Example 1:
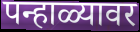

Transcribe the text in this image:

पन्हाळ्यावर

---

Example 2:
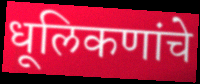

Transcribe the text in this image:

धूलिकणांचे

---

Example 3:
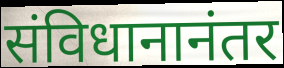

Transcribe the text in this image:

संविधानानंतर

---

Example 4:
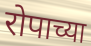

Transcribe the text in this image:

रोपाच्या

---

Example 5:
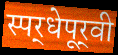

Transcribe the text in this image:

स्पर्धेपूर्वी